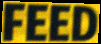
FEED